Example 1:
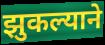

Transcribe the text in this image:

झुकल्याने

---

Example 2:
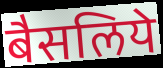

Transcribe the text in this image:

बैसलिये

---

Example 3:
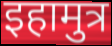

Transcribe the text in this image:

इहामुत्र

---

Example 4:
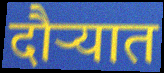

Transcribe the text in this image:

दौर्‍यात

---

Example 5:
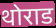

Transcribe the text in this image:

थोराड